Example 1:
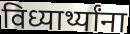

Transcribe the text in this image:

विध्यार्थ्यांना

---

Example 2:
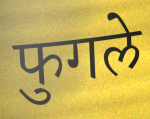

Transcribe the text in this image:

फुगले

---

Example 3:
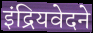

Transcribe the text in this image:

इंद्रियवेदने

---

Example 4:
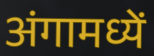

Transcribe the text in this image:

अंगामध्यें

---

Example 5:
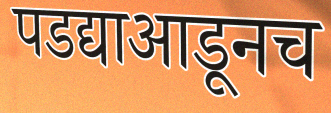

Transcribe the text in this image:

पडद्याआडूनच